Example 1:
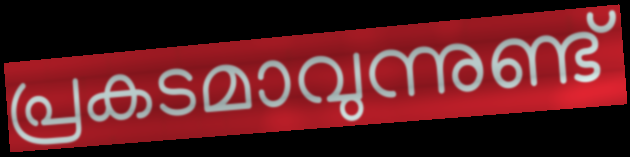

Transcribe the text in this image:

പ്രകടമാവുന്നുണ്ട്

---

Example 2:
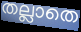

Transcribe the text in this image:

തല്ലാതെ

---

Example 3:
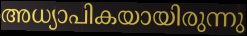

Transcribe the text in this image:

അധ്യാപികയായിരുന്നു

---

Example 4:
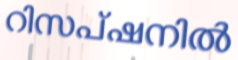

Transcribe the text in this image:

റിസപ്ഷനിൽ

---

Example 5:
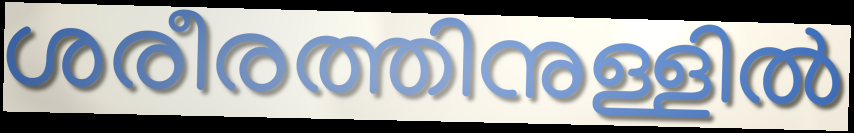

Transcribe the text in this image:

ശരീരത്തിനുള്ളിൽ